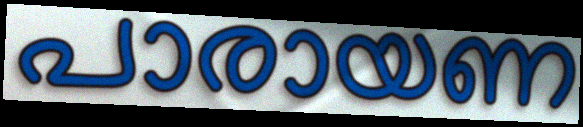
പാരായണ